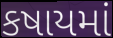
કષાયમાં